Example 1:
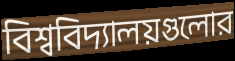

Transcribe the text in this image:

বিশ্ববিদ্যালয়গুলোর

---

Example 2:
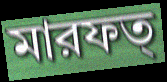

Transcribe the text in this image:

মারফত্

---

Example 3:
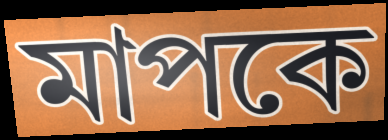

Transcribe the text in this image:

মাপকে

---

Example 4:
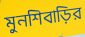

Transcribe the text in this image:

মুনশিবাড়ির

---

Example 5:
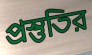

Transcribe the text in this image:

প্রস্তুতির